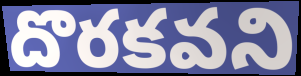
దొరకవని